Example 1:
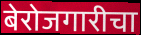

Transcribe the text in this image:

बेरोजगारीचा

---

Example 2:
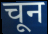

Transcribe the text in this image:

चून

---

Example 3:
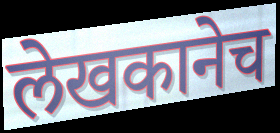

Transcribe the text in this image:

लेखकानेच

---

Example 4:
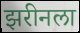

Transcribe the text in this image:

झरीनला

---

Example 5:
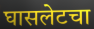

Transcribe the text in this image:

घासलेटचा